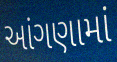
આંગણામાં